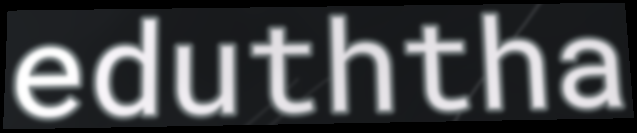
eduththa